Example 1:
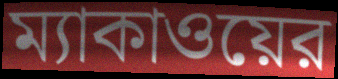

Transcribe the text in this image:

ম্যাকাওয়ের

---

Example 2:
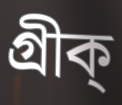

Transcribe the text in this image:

গ্রীক্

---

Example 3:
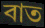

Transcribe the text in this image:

বাত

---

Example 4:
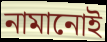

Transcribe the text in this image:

নামানোই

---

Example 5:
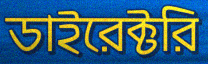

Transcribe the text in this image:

ডাইরেক্টরি